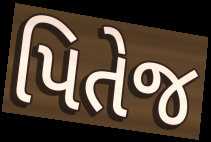
પિતેજ